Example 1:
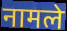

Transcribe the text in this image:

नामले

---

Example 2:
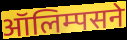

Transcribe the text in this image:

ऑलिम्पसने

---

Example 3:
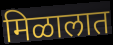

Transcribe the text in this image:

मिळालात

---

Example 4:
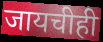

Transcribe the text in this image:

जायचीही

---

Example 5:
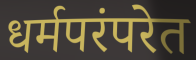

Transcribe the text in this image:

धर्मपरंपरेत